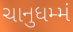
ચાનુધમ્મં